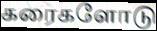
கரைகளோடு